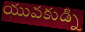
యువకుడ్ని